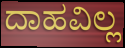
ದಾಹವಿಲ್ಲ